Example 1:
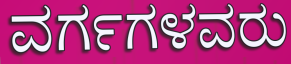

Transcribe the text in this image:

ವರ್ಗಗಳವರು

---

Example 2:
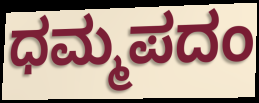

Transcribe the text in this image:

ಧಮ್ಮಪದಂ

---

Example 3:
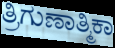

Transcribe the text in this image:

ತ್ರಿಗುಣಾತ್ಮಿಕಾ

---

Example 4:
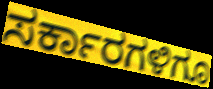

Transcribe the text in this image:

ಸರ್ಕಾರಗಳಿಗೂ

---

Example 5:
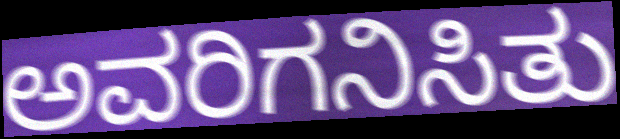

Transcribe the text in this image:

ಅವರಿಗನಿಸಿತು